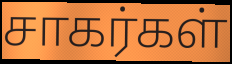
சாகர்கள்